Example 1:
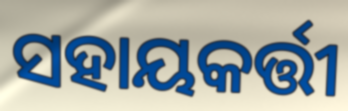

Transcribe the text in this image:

ସହାୟକର୍ତ୍ତୀ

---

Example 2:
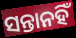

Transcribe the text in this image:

ସନ୍ତାନହିଁ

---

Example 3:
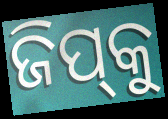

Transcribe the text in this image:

ଜିପ୍‍କୁ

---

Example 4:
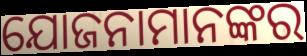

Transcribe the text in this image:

ଯୋଜନାମାନଙ୍କର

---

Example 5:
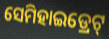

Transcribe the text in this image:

ସେମିହାଇଡ୍ରେଟ୍